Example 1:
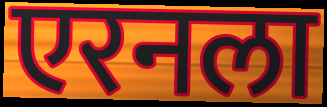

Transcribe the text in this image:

एरनला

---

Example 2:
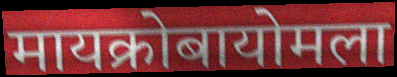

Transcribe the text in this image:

मायक्रोबायोमला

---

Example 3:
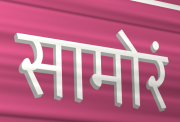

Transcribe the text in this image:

सामोरं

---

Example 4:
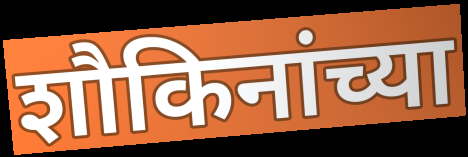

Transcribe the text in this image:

शौकिनांच्या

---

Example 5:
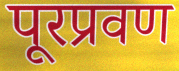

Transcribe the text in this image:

पूरप्रवण